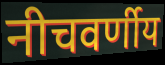
नीचवर्णीय